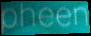
pheen